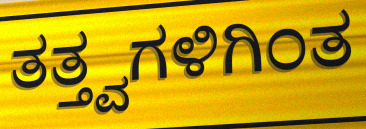
ತತ್ತ್ವಗಳಿಗಿಂತ